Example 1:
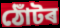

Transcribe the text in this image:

ঠোঁটৰ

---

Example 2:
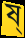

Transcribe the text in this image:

ষ্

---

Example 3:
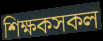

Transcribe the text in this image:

শিক্ষকসকল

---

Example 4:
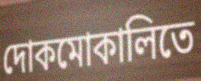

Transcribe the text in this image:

দোকমোকালিতে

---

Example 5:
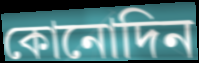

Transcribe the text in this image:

কোনোদিন